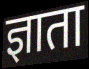
ज्ञाता